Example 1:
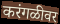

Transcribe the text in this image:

करंगळीवर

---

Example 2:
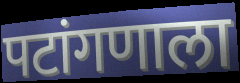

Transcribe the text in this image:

पटांगणाला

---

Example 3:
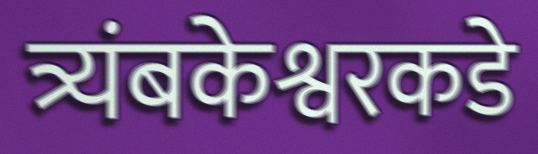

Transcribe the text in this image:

त्र्यंबकेश्वरकडे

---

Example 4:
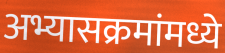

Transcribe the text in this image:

अभ्यासक्रमांमध्ये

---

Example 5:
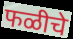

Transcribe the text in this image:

फळीचे